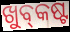
ଖୁବ୍‌କଷ୍ଟ